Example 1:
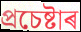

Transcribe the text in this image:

প্ৰচেষ্টাৰ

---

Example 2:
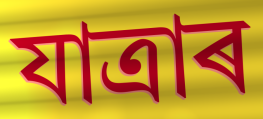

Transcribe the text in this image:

যাত্ৰাৰ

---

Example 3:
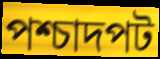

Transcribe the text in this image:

পশ্চাদপট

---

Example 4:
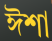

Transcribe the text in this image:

ঈশা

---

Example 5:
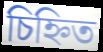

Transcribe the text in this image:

চিহ্নিত